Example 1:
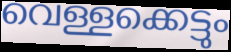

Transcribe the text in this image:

വെള്ളക്കെട്ടും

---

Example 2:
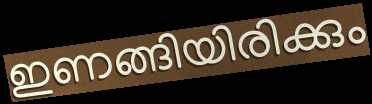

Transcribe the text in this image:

ഇണങ്ങിയിരിക്കും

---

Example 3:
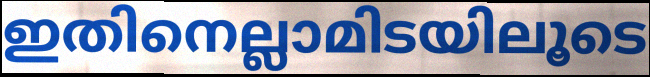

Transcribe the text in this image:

ഇതിനെല്ലാമിടയിലൂടെ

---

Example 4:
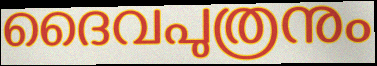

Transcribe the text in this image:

ദൈവപുത്രനും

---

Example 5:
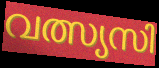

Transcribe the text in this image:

വത്സ്യസി